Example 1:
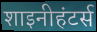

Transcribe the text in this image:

शाइनीहंटर्स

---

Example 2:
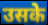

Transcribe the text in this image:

उसके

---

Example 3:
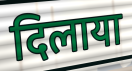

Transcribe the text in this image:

दिलाया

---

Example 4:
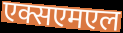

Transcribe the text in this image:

एक्सएमएल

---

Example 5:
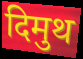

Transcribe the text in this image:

दिमुथ